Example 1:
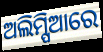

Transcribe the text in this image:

ଅଲିମ୍ପିଆରେ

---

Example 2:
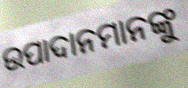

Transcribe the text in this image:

ଉପାଦାନମାନଙ୍କୁ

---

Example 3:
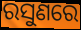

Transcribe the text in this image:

ରସୁଣରେ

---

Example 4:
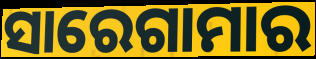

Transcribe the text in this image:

ସାରେଗାମାର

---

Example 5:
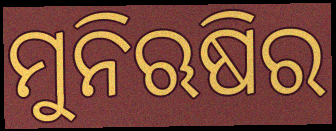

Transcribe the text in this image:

ମୁନିଋଷିର